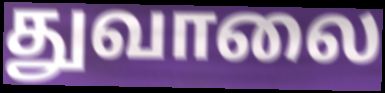
துவாலை